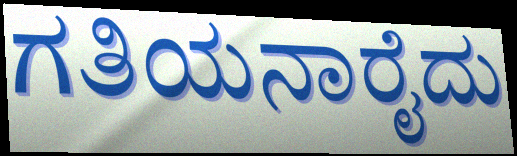
ಗತಿಯನಾರೈದು